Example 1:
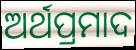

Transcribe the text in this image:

ଅର୍ଥପ୍ରମାଦ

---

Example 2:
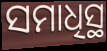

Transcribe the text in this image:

ସମାଧିସ୍ଥ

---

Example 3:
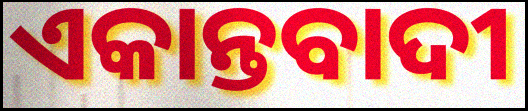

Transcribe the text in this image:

ଏକାନ୍ତବାଦୀ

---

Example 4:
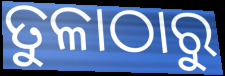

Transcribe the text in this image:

ତୁଳାଠାରୁ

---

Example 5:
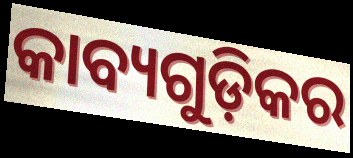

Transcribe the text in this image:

କାବ୍ୟଗୁଡ଼ିକର